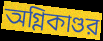
অগ্নিকাণ্ডর